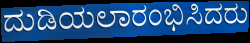
ದುಡಿಯಲಾರಂಭಿಸಿದರು